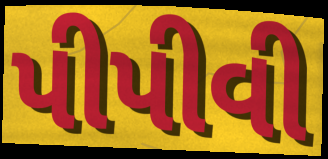
પીપીવી